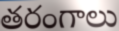
తరంగాలు